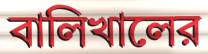
বালিখালের